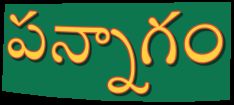
పన్నాగం